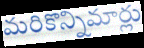
మరికొన్నిమార్లు